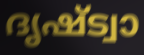
ദൃഷ്ട്വാ